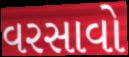
વરસાવો